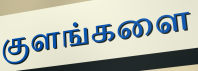
குளங்களை